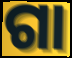
ଗା